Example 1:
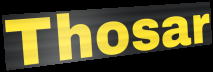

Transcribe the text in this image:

Thosar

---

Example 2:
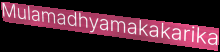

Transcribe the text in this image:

Mulamadhyamakakarika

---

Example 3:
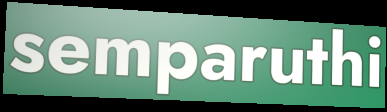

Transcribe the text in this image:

semparuthi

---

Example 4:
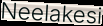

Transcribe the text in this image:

Neelakesi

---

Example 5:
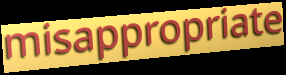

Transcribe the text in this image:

misappropriate